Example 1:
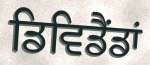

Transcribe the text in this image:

ਡਿਵਿਡੈਂਡਾਂ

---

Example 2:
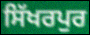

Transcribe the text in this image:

ਸਿੱਖਰਪੁਰ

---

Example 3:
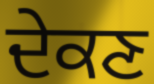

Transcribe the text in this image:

ਦੇਕਣ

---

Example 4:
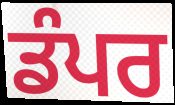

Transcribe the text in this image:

ਡੰਪਰ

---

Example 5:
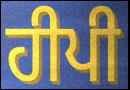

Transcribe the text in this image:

ਹੀਪੀ